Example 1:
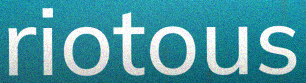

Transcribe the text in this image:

riotous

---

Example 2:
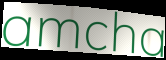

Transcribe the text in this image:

amcha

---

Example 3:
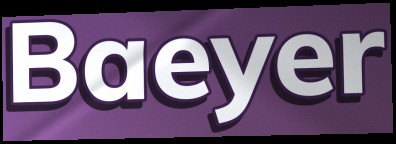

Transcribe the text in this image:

Baeyer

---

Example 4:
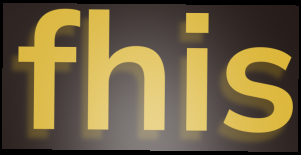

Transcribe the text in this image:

fhis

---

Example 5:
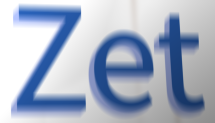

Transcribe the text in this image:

Zet